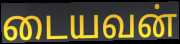
டையவன்